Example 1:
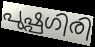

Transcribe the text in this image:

പുഷ്പഗിരി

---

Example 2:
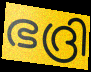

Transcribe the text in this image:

ഭദ്രി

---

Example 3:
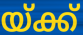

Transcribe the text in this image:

യ്ക്ക്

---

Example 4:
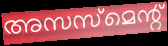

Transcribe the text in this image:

അസസ്മെന്റ്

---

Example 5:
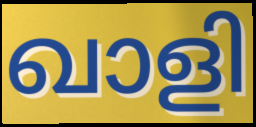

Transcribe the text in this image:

ഖാളി